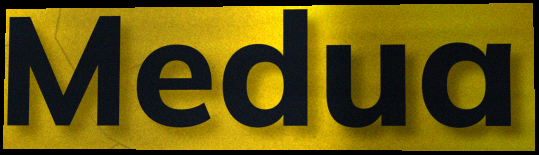
Medua